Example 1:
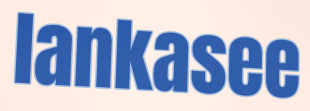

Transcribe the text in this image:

lankasee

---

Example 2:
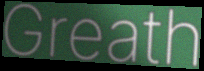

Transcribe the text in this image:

Greath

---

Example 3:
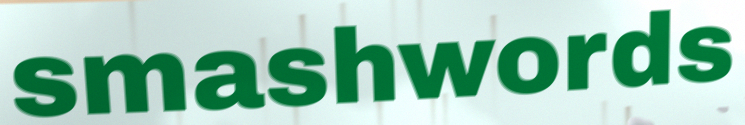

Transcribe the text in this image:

smashwords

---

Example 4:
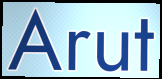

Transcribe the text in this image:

Arut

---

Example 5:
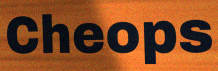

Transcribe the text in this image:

Cheops